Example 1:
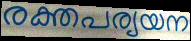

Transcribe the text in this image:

രക്തപര്യയന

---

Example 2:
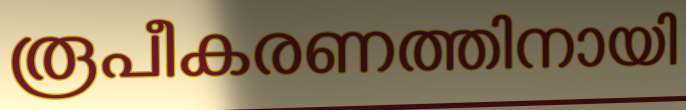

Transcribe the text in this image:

രൂപീകരണത്തിനായി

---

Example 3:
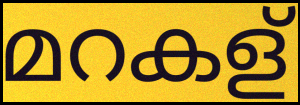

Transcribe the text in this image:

മറകള്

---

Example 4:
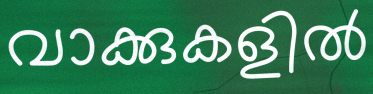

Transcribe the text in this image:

വാക്കുകളിൽ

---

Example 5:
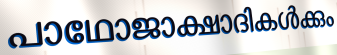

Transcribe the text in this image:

പാഥോജാക്ഷാദികൾക്കും